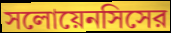
সলোয়েনসিসের